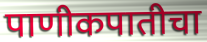
पाणीकपातीचा